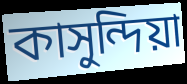
কাসুন্দিয়া